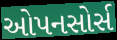
ઓપનસોર્સ